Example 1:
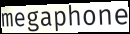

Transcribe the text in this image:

megaphone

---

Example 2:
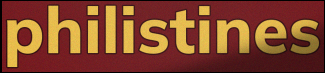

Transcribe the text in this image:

philistines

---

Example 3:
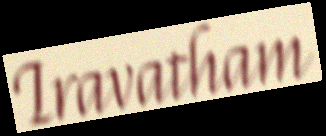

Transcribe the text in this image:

Iravatham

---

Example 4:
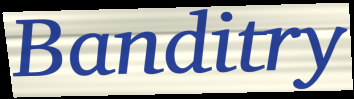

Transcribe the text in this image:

Banditry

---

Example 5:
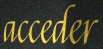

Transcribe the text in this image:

acceder